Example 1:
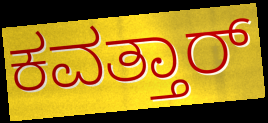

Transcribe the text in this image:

ಕವತ್ತಾರ್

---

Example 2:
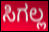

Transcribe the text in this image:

ಸಿಗಲ್ಲ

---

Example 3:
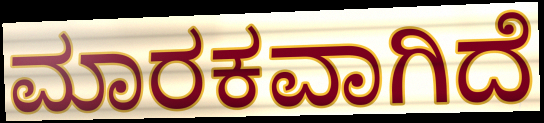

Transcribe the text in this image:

ಮಾರಕವಾಗಿದೆ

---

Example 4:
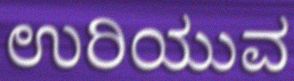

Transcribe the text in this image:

ಉರಿಯುವ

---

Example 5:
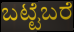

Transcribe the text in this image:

ಬಟ್ಟೆಬರೆ